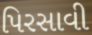
પિરસાવી